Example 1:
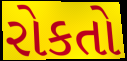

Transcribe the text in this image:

રોકતો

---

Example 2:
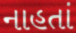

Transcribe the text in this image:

નાહતાં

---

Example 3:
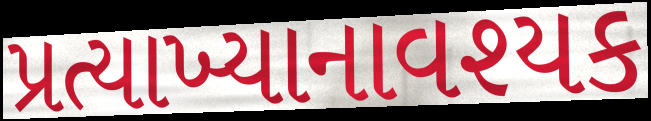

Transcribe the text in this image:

પ્રત્યાખ્યાનાવશ્યક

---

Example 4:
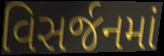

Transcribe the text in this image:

વિસર્જનમાં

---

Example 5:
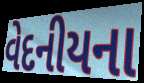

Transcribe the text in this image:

વેદનીયના